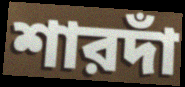
শারদাঁ